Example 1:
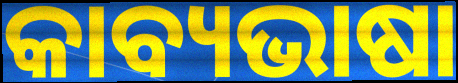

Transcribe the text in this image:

କାବ୍ୟଭାଷା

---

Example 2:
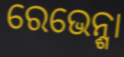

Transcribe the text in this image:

ରେଭେନ୍ଶା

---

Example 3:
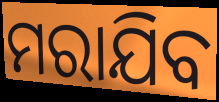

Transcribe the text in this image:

ମରାଯିବ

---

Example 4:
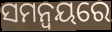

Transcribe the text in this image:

ସମନ୍ବୟରେ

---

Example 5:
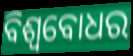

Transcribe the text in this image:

ବିଶ୍ବବୋଧର